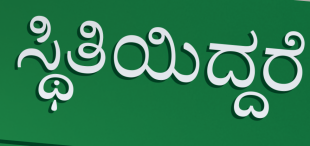
ಸ್ಥಿತಿಯಿದ್ದರೆ